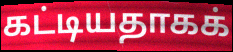
கட்டியதாகக்